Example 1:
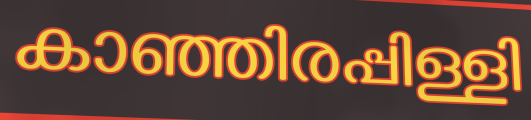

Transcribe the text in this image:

കാഞ്ഞിരപ്പിള്ളി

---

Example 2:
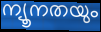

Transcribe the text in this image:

ന്യൂനതയും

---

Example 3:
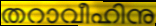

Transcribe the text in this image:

തറാവീഹിനു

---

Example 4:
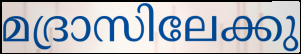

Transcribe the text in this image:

മദ്രാസിലേക്കു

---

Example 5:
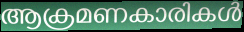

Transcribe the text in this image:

ആക്രമണകാരികൾ